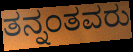
ತನ್ನಂತವರು